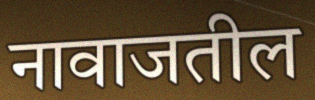
नावाजतील